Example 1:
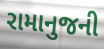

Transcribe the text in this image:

રામાનુજની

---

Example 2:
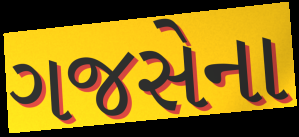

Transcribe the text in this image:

ગજસેના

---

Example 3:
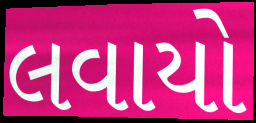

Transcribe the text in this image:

લવાયો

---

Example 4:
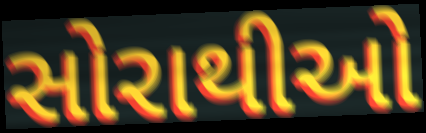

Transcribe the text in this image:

સોરાથીઓ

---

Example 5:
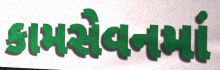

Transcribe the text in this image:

કામસેવનમાં